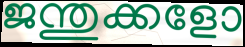
ജന്തുക്കളോ